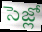
సెజ్లో